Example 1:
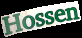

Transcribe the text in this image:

Hossen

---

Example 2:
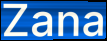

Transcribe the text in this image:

Zana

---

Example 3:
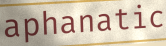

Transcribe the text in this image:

aphanatic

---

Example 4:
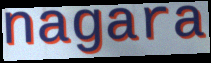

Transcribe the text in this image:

nagara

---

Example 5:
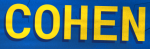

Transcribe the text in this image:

COHEN